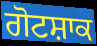
ਗੋਟਸ਼ਾਕ